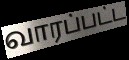
வாரப்பட்ட